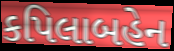
કપિલાબહેન